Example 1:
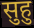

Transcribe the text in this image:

सुहु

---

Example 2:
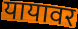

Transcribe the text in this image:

यायावर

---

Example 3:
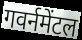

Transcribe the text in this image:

गवर्नमेंटल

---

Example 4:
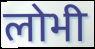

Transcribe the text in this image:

लोभी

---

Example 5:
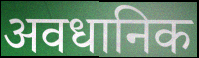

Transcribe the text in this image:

अवधानिक